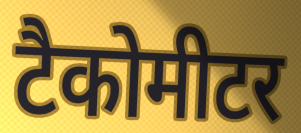
टैकोमीटर